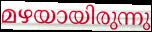
മഴയായിരുന്നു